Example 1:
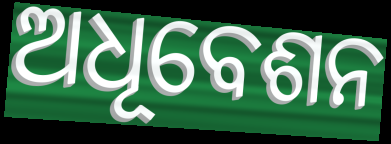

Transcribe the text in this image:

ଅଧୂବେଶନ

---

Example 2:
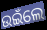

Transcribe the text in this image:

ଉଇଁଲେ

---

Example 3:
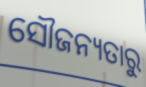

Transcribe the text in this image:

ସୌଜନ୍ୟତାରୁ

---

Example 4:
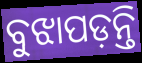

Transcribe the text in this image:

ବୁଝାପଡ଼ନ୍ତି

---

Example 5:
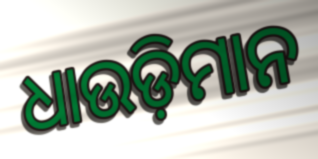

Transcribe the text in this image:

ଧାଉଡ଼ିମାନ